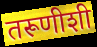
तरूणीशी